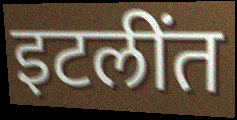
इटलींत